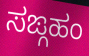
ಸಙ್ಗಹಂ